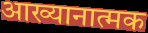
आख्यानात्मक